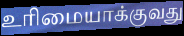
உரிமையாக்குவது